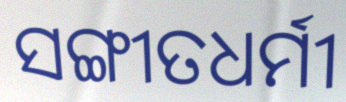
ସଙ୍ଗୀତଧର୍ମୀ